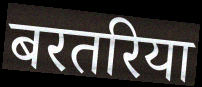
बरतरिया